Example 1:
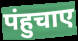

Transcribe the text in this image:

पंहुचाए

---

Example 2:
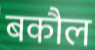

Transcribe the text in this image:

बकौल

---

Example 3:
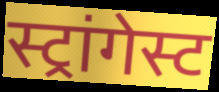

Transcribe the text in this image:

स्ट्रांगेस्ट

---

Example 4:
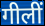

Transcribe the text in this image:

गीलीं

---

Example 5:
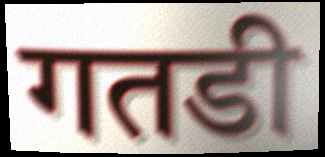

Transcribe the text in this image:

गतडी